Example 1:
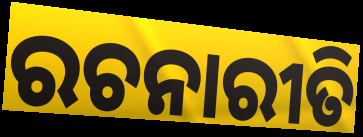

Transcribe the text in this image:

ରଚନାରୀତି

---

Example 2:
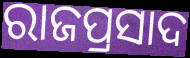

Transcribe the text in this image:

ରାଜପ୍ରସାଦ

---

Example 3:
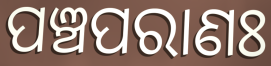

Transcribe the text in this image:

ପଞ୍ଚପରାଣଃ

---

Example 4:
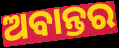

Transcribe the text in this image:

ଅବାନ୍ତର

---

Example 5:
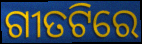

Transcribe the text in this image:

ଗୀତଟିରେ